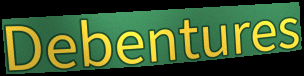
Debentures